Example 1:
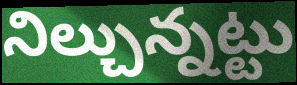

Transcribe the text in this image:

నిల్చున్నట్టు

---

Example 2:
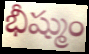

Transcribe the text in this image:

భీష్ముం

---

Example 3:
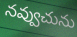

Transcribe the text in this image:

నవ్వుచును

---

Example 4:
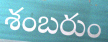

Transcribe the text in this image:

శంబరుం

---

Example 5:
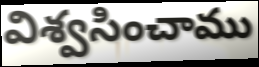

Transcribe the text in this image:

విశ్వసించాము